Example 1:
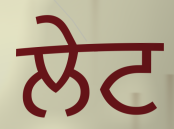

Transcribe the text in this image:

ਲੇਟ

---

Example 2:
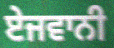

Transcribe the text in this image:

ਏਜਵਾਨੀ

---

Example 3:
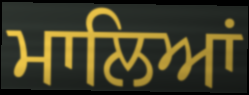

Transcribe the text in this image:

ਮਾਲਿਆਂ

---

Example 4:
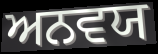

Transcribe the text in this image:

ਅਨਵਯ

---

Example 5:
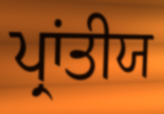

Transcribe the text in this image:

ਪ੍ਰਾਂਤੀਯ